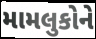
મામલુકોને